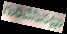
గురిచేసినట్లు